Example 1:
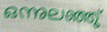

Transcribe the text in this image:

ഒന്നുലഞ്ഞു്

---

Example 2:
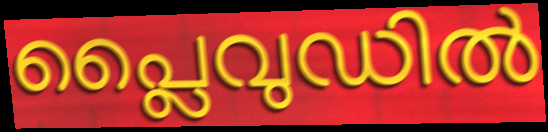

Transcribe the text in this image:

പ്ലൈവുഡിൽ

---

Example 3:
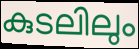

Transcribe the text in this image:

കുടലിലും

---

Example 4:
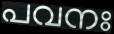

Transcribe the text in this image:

പവനഃ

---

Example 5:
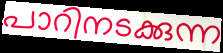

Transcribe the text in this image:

പാറിനടക്കുന്ന